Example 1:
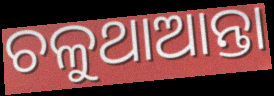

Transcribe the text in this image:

ଚଳୁଥାଆନ୍ତା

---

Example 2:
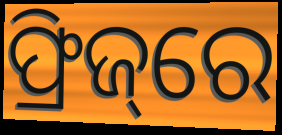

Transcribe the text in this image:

ଫ୍ରିଜ୍‌ରେ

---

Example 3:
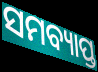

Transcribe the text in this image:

ସମବ୍ୟାପ୍ତ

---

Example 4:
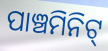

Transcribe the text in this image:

ପାଞ୍ଚମିନିଟ୍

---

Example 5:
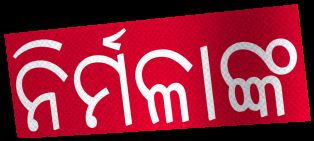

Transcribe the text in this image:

ନିର୍ମଳାଙ୍କ